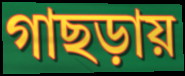
গাছড়ায়